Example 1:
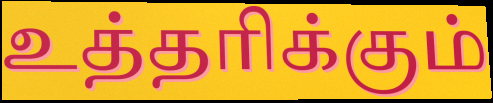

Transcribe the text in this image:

உத்தரிக்கும்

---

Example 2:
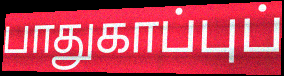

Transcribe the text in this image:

பாதுகாப்புப்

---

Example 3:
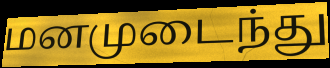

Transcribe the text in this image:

மனமுடைந்து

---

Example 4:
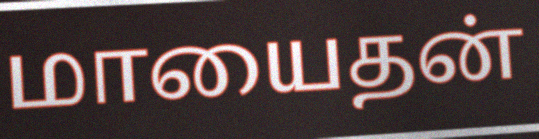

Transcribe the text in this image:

மாயைதன்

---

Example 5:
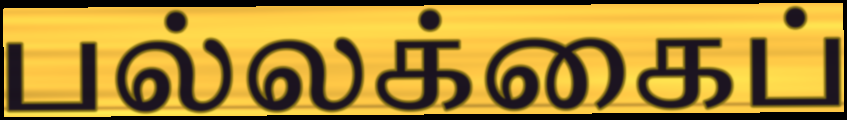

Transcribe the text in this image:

பல்லக்கைப்